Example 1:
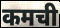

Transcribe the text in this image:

कमची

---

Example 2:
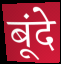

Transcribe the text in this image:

बूंदे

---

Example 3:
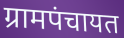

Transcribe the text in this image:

ग्रामपंचायत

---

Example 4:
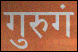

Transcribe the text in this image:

गुरुगं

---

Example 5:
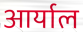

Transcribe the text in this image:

आर्याल